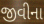
જીવીના